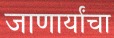
जाणार्यांचा